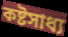
কষ্টসাধ্য